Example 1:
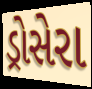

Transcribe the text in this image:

ડ્રોસેરા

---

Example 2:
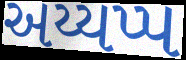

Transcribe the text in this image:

અય્યપ્પ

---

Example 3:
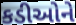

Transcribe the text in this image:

કડીઓને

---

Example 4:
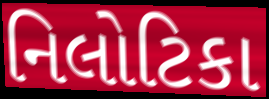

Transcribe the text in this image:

નિલોટિકા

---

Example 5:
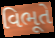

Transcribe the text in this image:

વિભૂતે